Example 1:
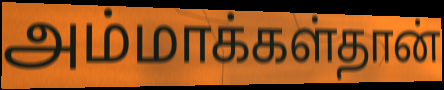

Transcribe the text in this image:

அம்மாக்கள்தான்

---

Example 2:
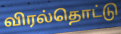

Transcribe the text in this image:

விரல்தொட்டு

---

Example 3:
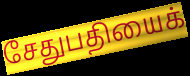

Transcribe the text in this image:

சேதுபதியைக்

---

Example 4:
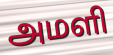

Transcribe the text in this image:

அமளி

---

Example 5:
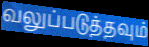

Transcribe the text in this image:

வலுப்படுத்தவும்